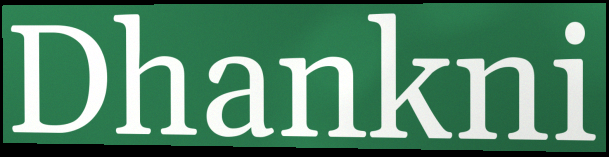
Dhankni